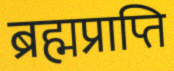
ब्रह्मप्राप्ति